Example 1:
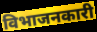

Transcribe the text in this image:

विभाजनकारी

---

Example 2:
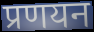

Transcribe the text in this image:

प्रणयन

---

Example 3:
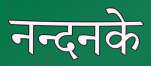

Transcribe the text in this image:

नन्दनके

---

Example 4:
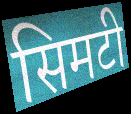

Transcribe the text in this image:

सिमटी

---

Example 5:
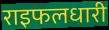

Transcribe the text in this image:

राइफलधारी